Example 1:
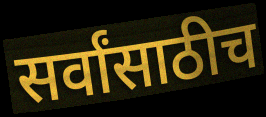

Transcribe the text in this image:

सर्वांसाठीच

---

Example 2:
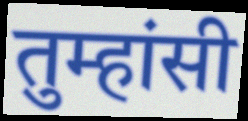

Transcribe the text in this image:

तुम्हांसी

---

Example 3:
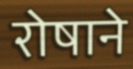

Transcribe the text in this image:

रोषाने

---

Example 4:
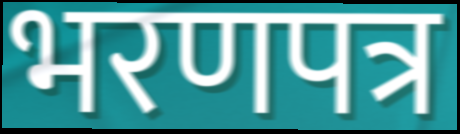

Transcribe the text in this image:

भरणपत्र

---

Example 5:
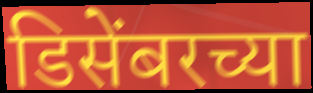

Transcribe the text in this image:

डिसेंबरच्या